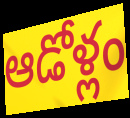
ఆడోళ్లం